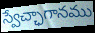
స్వేచ్ఛాగానము